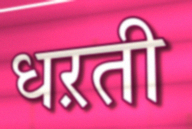
धऱती